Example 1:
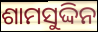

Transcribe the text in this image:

ଶାମସୁଦ୍ଦିନ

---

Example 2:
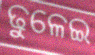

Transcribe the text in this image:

ଢୁଳେଇ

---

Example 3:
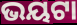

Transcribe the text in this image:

ଭୟଟା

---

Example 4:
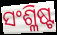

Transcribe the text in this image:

ସଂଶ୍ଳିଷ୍ଟ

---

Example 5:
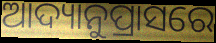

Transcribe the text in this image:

ଆଦ୍ୟାନୁପ୍ରାସରେ